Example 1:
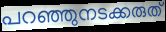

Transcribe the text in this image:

പറഞ്ഞുനടക്കരുത്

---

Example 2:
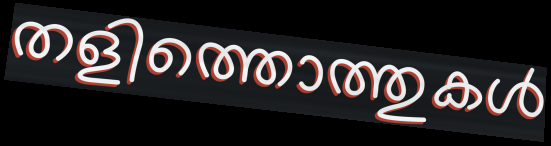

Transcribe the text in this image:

തളിത്തൊത്തുകൾ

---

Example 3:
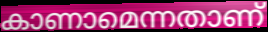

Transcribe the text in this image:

കാണാമെന്നതാണ്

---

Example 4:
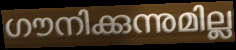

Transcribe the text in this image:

ഗൗനിക്കുന്നുമില്ല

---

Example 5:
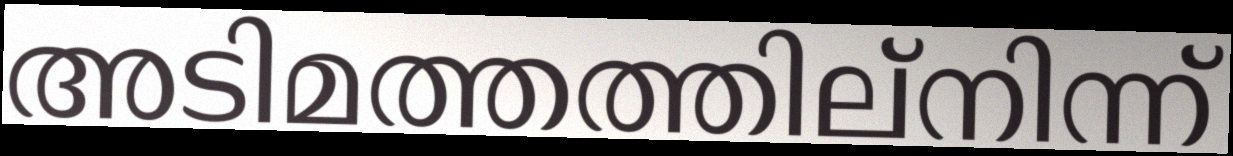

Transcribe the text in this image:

അടിമത്തത്തില്നിന്ന്